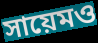
সায়েমও